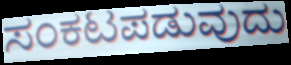
ಸಂಕಟಪಡುವುದು